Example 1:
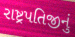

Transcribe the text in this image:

રાષ્ટ્રપતિજીનું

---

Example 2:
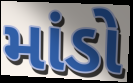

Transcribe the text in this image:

માંડો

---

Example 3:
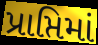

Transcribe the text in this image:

પ્રાપ્તિમાં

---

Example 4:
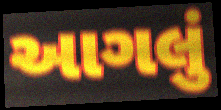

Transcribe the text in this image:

આગલું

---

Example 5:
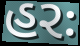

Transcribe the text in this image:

હરઃ